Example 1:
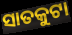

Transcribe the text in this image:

ସାତକୁଟା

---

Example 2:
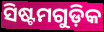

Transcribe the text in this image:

ସିଷ୍ଟମଗୁଡ଼ିକ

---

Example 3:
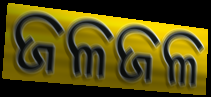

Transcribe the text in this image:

ଜଳଜଳ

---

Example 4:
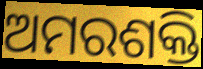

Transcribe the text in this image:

ଅମରଶକ୍ତି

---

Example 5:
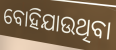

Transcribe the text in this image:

ବୋହିଯାଉଥିବା